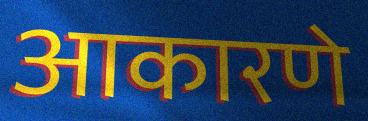
आकारणे